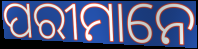
ପରୀମାନେ